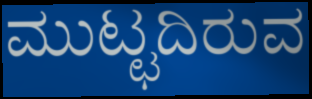
ಮುಟ್ಟದಿರುವ